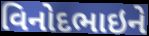
વિનોદભાઇને